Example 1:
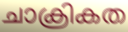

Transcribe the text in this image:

ചാക്രികത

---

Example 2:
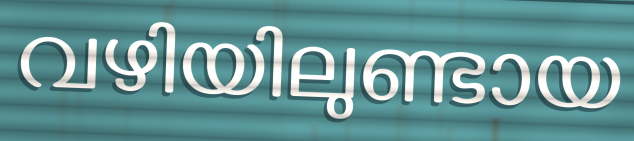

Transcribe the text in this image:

വഴിയിലുണ്ടായ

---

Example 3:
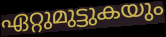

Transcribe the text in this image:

ഏറ്റുമുട്ടുകയും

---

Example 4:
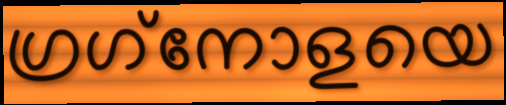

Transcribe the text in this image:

ഗ്രഗ്‌നോളയെ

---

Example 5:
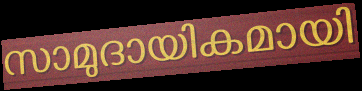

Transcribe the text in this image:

സാമുദായികമായി